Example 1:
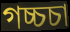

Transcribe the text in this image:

গচ্চচা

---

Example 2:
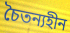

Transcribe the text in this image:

চৈতন্যহীন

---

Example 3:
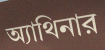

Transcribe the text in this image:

অ্যাথিনার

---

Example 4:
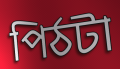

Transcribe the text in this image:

পিঠটা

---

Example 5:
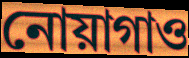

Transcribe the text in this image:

নোয়াগাও